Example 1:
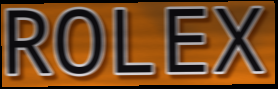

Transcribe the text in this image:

ROLEX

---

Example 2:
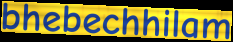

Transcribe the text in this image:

bhebechhilam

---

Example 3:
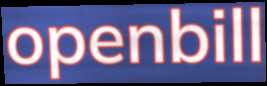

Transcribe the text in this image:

openbill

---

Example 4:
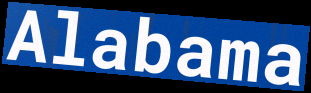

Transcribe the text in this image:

Alabama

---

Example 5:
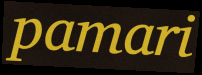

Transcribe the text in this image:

pamari